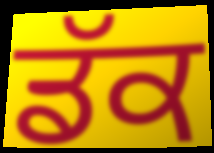
ਡੱਕ